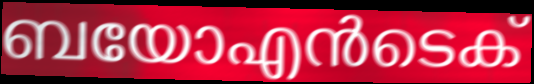
ബയോഎൻടെക്